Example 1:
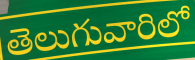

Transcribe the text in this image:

తెలుగువారిలో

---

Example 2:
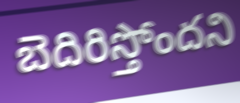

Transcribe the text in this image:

బెదిరిస్తోందని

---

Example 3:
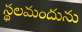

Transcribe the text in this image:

స్థలమందును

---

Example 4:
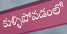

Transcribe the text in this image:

కుళ్ళిపోవడంలో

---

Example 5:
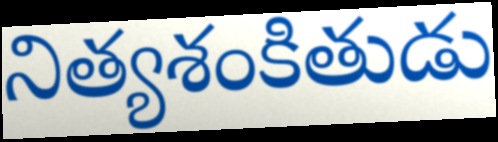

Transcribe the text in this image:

నిత్యశంకితుడు